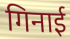
गिनाई